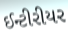
ઈન્ટીરીયર